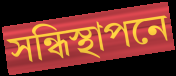
সন্ধিস্থাপনে